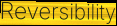
Reversibility